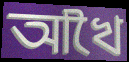
আখৈ